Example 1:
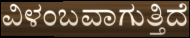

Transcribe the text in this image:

ವಿಳಂಬವಾಗುತ್ತಿದೆ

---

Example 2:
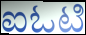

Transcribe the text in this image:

ಐಓಟಿ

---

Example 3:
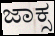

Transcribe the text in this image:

ಜಾಕ್ಸ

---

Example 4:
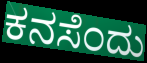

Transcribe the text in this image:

ಕನಸೆಂದು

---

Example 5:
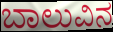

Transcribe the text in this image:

ಬಾಲುವಿನ